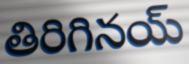
తిరిగినయ్